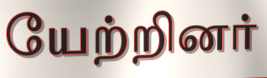
யேற்றினர்